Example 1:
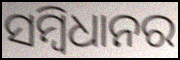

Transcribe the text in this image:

ସମ୍ବିଧାନର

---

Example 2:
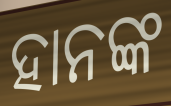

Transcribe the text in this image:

ହାନଙ୍କ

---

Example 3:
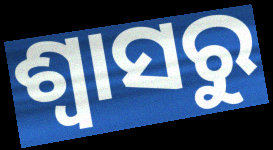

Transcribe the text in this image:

ଶ୍ୱାସରୁ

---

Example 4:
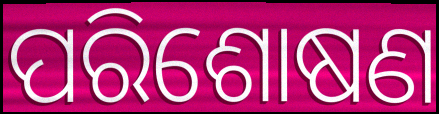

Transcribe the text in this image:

ପରିଶୋଷଣ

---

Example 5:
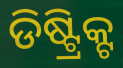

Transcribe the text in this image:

ଡିଷ୍ଟ୍ରିକ୍ଟ